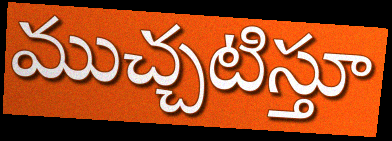
ముచ్చటిస్తూ